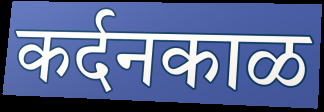
कर्दनकाळ